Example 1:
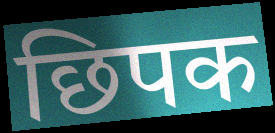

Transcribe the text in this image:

छिपक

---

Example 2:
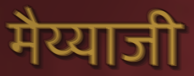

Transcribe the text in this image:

मैय्याजी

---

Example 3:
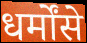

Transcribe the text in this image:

धर्मोंसे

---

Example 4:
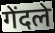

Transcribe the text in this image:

गेंदले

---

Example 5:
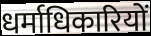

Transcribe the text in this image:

धर्माधिकारियों